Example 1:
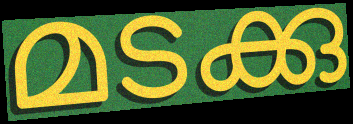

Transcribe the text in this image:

മടക്കു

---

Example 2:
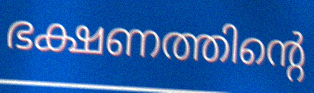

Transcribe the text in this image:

ഭക്ഷണത്തിന്റെ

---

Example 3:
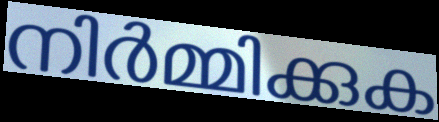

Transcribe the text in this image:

നിർമ്മിക്കുക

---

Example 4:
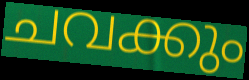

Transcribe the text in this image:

ചവക്കും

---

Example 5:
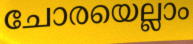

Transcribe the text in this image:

ചോരയെല്ലാം